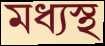
মধ্যস্থ